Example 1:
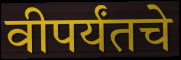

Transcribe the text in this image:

वीपर्यंतचे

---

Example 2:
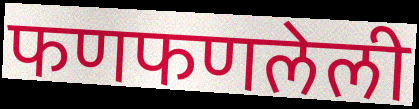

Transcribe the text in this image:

फणफणलेली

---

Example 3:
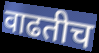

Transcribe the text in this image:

वाढतीच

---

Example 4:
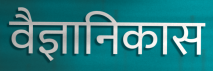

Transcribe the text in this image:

वैज्ञानिकास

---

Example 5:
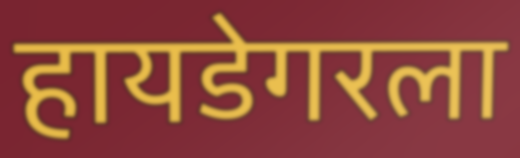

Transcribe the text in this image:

हायडेगरला